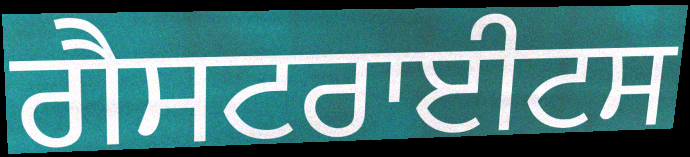
ਗੈਸਟਰਾਈਟਸ